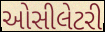
ઓસીલેટરી